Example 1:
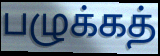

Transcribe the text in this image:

பழுக்கத்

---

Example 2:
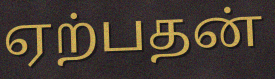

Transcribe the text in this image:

ஏற்பதன்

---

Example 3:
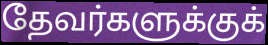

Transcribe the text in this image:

தேவர்களுக்குக்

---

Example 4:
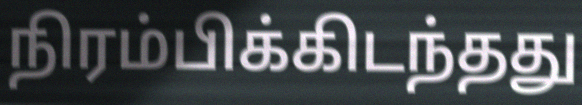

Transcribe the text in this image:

நிரம்பிக்கிடந்தது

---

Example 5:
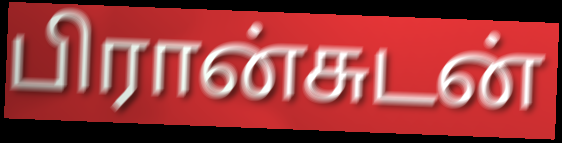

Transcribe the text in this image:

பிரான்சுடன்